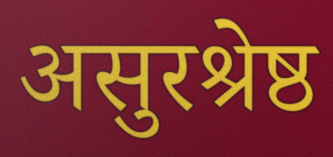
असुरश्रेष्ठ